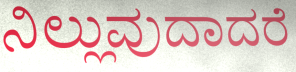
ನಿಲ್ಲುವುದಾದರೆ